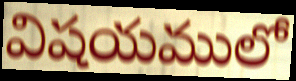
విషయములో